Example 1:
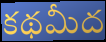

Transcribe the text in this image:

కథమీద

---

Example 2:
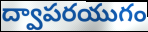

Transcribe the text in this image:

ద్వాపరయుగం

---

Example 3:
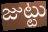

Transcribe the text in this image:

జుట్టు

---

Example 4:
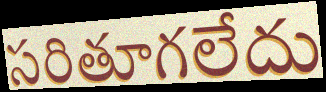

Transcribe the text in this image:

సరితూగలేదు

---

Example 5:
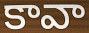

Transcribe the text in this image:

కావా